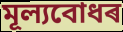
মূল্যবোধৰ